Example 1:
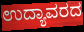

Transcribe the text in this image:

ಉದ್ಯಾವರದ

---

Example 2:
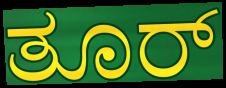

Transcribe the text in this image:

ತೂರ್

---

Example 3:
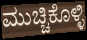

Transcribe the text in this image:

ಮುಚ್ಚಿಕೊಳ್ಳಿ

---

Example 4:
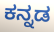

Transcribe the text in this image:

ಕನ್ನಡ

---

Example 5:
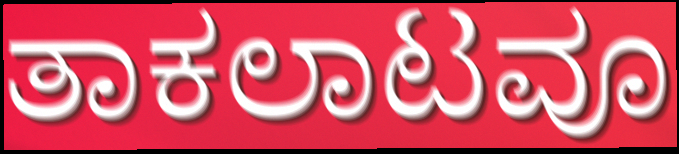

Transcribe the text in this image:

ತಾಕಲಾಟವೂ